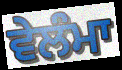
ਵੇਲੰਮਾ